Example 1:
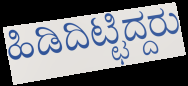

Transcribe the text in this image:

ಹಿಡಿದಿಟ್ಟಿದ್ದರು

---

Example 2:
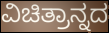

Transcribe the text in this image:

ವಿಚಿತ್ರಾನ್ನದ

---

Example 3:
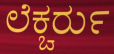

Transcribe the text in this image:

ಲೆಕ್ಚರ್ರು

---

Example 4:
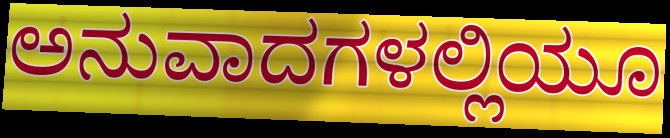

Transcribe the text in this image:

ಅನುವಾದಗಳಲ್ಲಿಯೂ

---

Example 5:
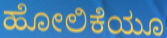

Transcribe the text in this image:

ಹೋಲಿಕೆಯೂ